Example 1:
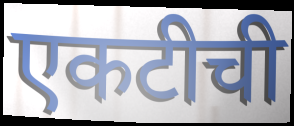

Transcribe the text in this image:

एकटीची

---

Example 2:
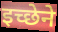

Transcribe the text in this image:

इच्छेने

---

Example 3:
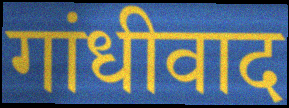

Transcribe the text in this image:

गांधीवाद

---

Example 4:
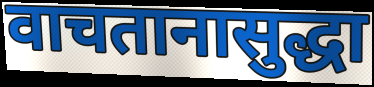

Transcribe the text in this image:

वाचतानासुद्धा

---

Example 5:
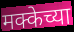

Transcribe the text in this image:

मक्केच्या